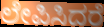
ಲೇಪಿಸಿದರೆ